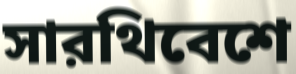
সারথিবেশে